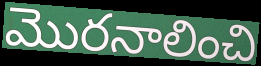
మొరనాలించి